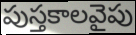
పుస్తకాలవైపు